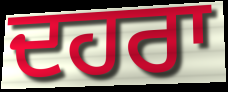
ਦਹਰਾ